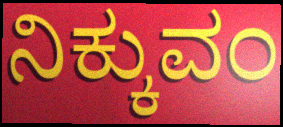
ನಿಕ್ಕುವಂ